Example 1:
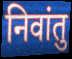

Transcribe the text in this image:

निवांतु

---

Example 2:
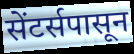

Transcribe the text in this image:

सेंटर्सपासून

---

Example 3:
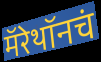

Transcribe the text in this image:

मॅरेथॉनचं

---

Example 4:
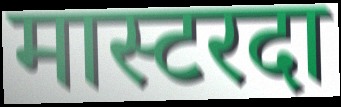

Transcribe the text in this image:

मास्टरदा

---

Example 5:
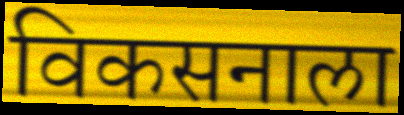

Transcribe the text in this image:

विकसनाला